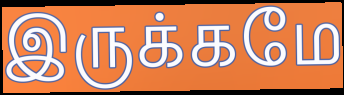
இருக்கமே